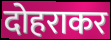
दोहराकर